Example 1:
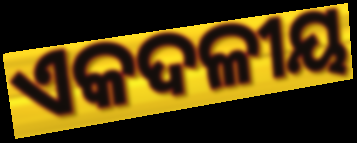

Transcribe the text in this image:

ଏକଦଳୀୟ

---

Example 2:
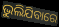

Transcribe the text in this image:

ଭୁଲିଯିବାରେ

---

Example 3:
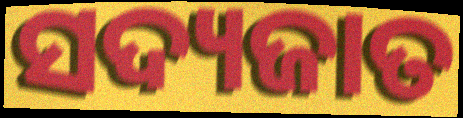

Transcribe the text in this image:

ସଦ୍ୟଜାତ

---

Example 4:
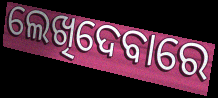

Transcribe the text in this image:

ଲେଖିଦେବାରେ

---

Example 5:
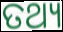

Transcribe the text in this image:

ତଥ୍ୟ